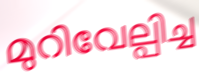
മുറിവേല്പിച്ച